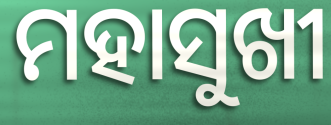
ମହାସୁଖୀ